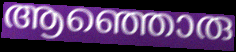
ആഞ്ഞൊരു